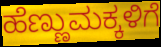
ಹೆಣ್ಣುಮಕ್ಕಳಿಗೆ